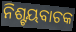
ନିଶ୍ଟୟବାଚକ